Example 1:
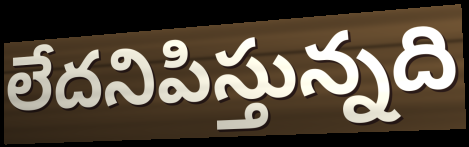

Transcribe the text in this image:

లేదనిపిస్తున్నది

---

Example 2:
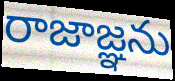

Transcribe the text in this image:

రాజాజ్ఞను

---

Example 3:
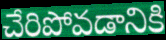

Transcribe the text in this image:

చేరిపోవడానికి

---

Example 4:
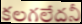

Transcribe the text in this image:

కలగలేదనీ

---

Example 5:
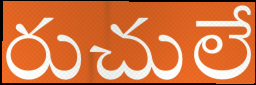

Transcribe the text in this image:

రుచులే